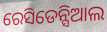
ରେସିଡେନ୍ସିଆଲ